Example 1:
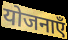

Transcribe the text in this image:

योजनाएँ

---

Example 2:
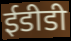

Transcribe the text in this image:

ईडीडी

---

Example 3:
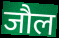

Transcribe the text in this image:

जौल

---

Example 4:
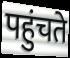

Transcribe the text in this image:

पहुंचते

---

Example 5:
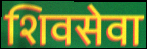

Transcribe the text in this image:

शिवसेवा